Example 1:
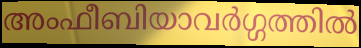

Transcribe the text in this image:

അംഫീബിയാവർഗ്ഗത്തിൽ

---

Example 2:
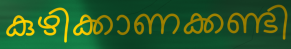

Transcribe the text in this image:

കുഴിക്കാണക്കണ്ടി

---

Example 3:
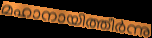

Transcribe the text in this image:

മഹാനായിത്തീർന്നു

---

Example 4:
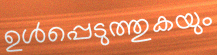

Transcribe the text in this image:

ഉൾപ്പെടുത്തുകയും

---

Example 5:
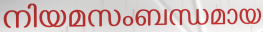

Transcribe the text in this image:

നിയമസംബന്ധമായ